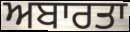
ਅਬਾਰਤਾ